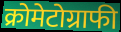
क्रोमेटोग्राफी